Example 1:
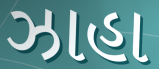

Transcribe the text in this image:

ઝાહા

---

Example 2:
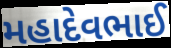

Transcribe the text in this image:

મહાદેવભાઈ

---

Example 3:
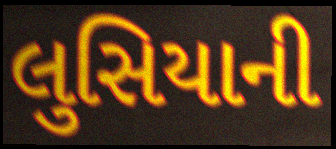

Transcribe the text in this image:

લુસિયાની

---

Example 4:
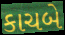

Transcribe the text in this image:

કાચબે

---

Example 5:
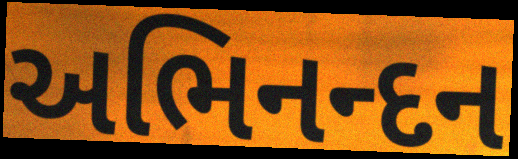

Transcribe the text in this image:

અભિનન્દન